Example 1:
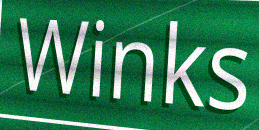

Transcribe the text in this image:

Winks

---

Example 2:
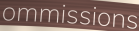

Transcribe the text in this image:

ommissions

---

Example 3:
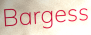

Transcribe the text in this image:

Bargess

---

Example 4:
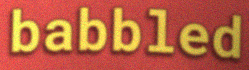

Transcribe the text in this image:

babbled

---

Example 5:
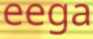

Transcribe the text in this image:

eega